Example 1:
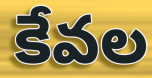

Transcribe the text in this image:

కేవల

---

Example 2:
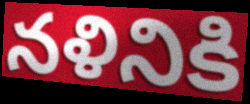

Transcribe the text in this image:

నళినికి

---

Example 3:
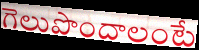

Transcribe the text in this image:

గెలుపొందాలంటే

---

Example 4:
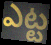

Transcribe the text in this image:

ఎట్ట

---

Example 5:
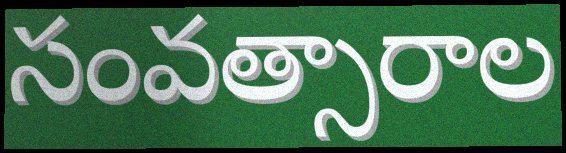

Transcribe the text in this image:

సంవత్సారాల